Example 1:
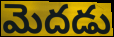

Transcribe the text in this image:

మెదడు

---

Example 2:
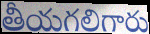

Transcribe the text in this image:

తీయగలిగారు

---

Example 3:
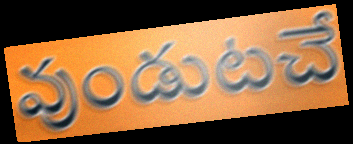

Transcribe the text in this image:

వుండుటచే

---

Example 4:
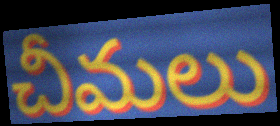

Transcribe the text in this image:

చీమలు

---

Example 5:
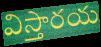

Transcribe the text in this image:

విస్తారయ